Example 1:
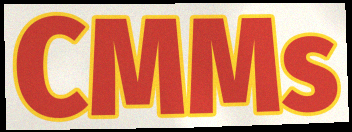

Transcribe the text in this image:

CMMs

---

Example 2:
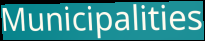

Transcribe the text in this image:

Municipalities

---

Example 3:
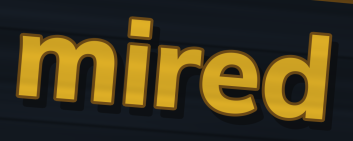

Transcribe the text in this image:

mired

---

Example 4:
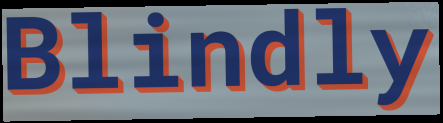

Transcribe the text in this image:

Blindly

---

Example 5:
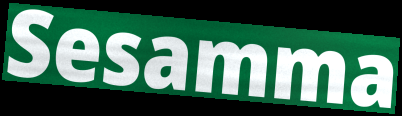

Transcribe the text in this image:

Sesamma